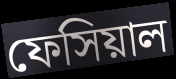
ফেসিয়াল